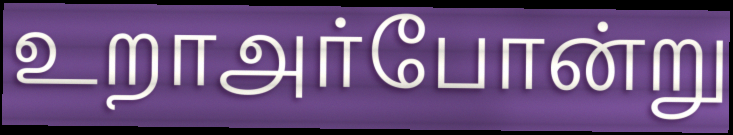
உறாஅர்போன்று